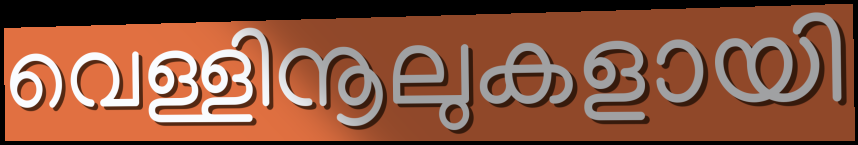
വെള്ളിനൂലുകളായി